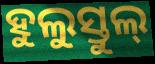
ହୁଲୁସ୍ତୁଲ୍